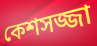
কেশসজ্জা